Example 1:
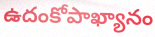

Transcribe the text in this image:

ఉదంకోపాఖ్యానం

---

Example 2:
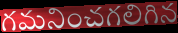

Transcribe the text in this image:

గమనించగలిగిన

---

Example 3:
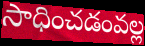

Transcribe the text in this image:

సాధించడంవల్ల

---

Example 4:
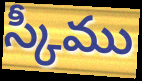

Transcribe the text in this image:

స్కీము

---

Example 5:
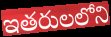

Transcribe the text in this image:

ఇతరులలోని